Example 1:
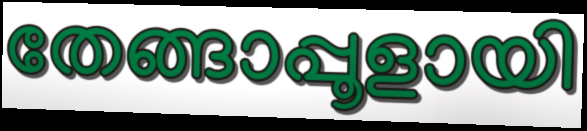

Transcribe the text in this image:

തേങ്ങാപ്പൂളായി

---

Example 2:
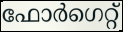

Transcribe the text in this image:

ഫോർഗെറ്റ്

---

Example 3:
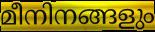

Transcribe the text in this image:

മീനിനങ്ങളും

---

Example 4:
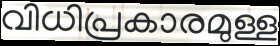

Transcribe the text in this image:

വിധിപ്രകാരമുള്ള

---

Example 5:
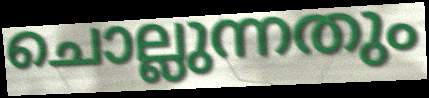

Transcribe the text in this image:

ചൊല്ലുന്നതും